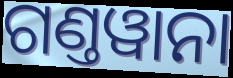
ଗଣ୍ତୱାନା